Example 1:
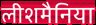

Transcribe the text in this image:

लीशमैनिया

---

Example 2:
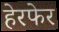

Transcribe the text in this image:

हेरफेर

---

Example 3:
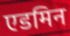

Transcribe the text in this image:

एडमिन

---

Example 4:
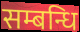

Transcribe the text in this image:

सम्बन्धि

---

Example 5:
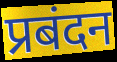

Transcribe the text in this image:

प्रबंदन